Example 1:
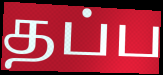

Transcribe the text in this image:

தப்ப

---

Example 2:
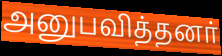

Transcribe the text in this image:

அனுபவித்தனர்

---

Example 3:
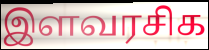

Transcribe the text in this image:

இளவரசிக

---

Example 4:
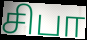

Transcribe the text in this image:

சிபா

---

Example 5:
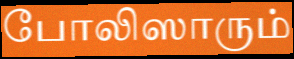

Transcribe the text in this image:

போலிஸாரும்